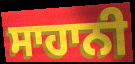
ਸਾਹਾਨੀ